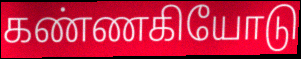
கண்ணகியோடு